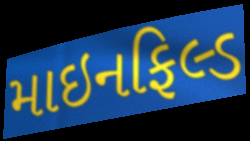
માઇનફિલ્ડ